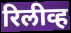
रिलीव्ह